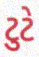
ટુટે